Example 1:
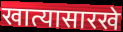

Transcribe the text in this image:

खात्यासारखे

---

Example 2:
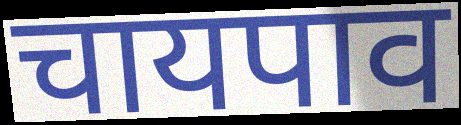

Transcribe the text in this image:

चायपाव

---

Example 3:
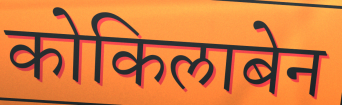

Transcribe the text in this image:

कोकिलाबेन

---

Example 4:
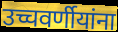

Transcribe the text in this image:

उच्चवर्णीयांना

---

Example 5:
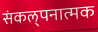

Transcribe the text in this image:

संकल्पनात्मक